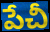
పేచీ